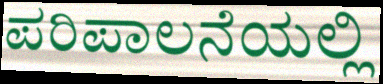
ಪರಿಪಾಲನೆಯಲ್ಲಿ